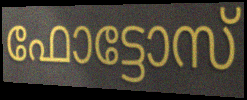
ഫോട്ടോസ്